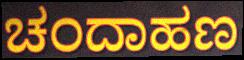
ಚಂದಾಹಣ